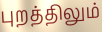
புறத்திலும்